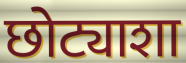
छोट्याशा